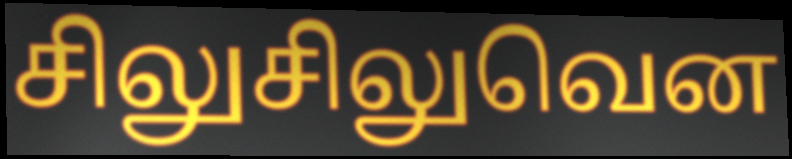
சிலுசிலுவென